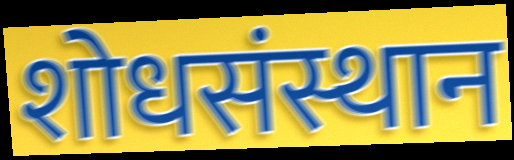
शोधसंस्थान